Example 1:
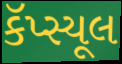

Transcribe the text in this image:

કૅપ્સ્યૂલ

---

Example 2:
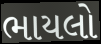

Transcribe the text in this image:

ભાયલો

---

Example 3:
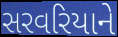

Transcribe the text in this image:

સરવરિયાને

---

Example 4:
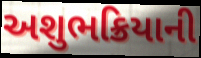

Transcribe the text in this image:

અશુભક્રિયાની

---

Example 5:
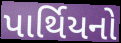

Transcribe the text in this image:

પાર્થિયનો